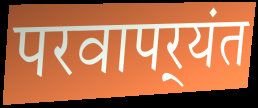
परवापर्यंत